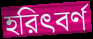
হরিৎবর্ণ